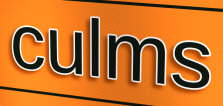
culms